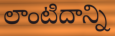
లాంటిదాన్ని